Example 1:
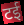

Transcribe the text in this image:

टई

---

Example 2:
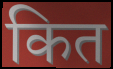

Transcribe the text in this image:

कित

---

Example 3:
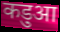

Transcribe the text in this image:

कड़ुआ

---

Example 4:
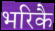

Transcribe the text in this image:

भरिकै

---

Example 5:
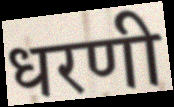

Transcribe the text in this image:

धरणी